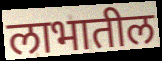
लाभातील